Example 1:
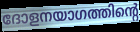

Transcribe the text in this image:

ദോളനയാഗത്തിന്റെ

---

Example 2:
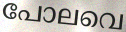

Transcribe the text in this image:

പോലവെ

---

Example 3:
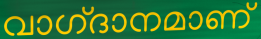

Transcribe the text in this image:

വാഗ്‌ദാനമാണ്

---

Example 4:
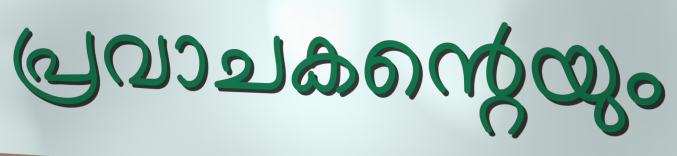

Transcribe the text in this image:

പ്രവാചകന്റെയും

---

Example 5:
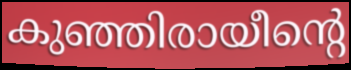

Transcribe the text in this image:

കുഞ്ഞിരായീന്റെ